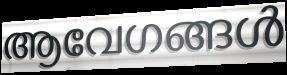
ആവേഗങ്ങൾ